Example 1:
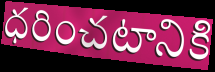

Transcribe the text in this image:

ధరించటానికి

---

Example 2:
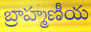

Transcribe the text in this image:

బ్రాహ్మణీయ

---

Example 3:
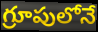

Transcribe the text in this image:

గ్రూపులోనే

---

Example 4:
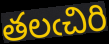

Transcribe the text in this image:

తలఁచిరి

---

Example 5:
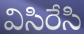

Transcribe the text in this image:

విసిరేసి